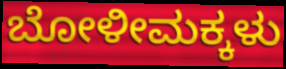
ಬೋಳೀಮಕ್ಕಳು